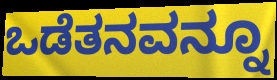
ಒಡೆತನವನ್ನೂ